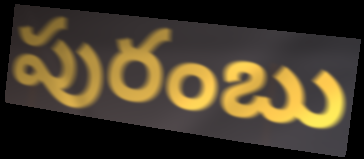
పురంబు